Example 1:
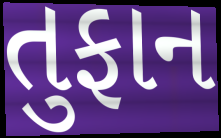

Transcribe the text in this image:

તુફાન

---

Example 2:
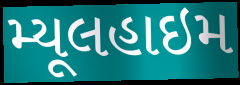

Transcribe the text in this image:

મ્યૂલહાઇમ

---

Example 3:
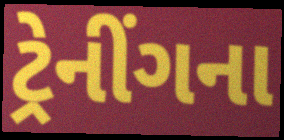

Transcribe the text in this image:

ટ્રેનીંગના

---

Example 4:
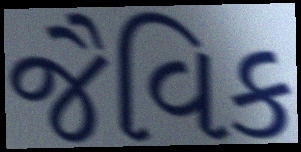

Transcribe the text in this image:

જૈવિક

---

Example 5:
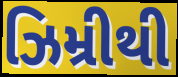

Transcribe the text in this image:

ઝિમ્રીથી